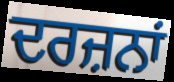
ਦਰਜ਼ਨਾਂ